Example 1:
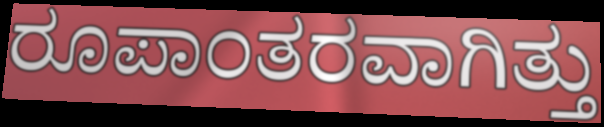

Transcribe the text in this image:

ರೂಪಾಂತರವಾಗಿತ್ತು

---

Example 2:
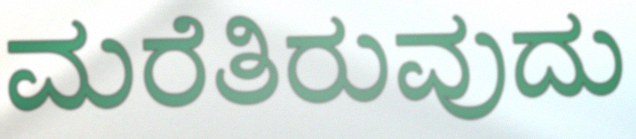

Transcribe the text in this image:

ಮರೆತಿರುವುದು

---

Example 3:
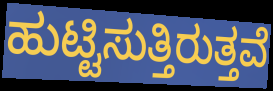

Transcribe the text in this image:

ಹುಟ್ಟಿಸುತ್ತಿರುತ್ತವೆ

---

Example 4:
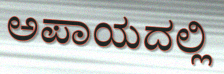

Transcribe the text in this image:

ಅಪಾಯದಲ್ಲಿ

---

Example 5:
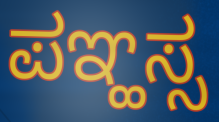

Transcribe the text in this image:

ಪಞ್ಹಸ್ಸ